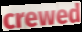
crewed